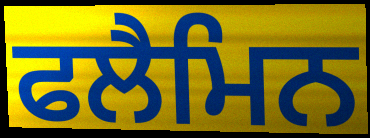
ਫਲੈਮਿਨ